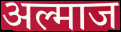
अल्माज